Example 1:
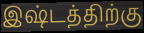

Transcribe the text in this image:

இஷ்டத்திற்கு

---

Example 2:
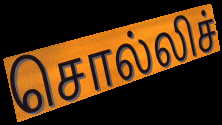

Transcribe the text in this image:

சொல்லிச்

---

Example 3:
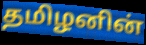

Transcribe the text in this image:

தமிழனின்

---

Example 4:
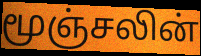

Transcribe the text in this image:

மூஞ்சலின்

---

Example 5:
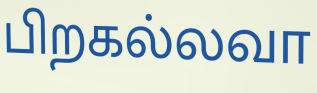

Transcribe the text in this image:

பிறகல்லவா